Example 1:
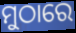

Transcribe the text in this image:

ମୁଠାରେ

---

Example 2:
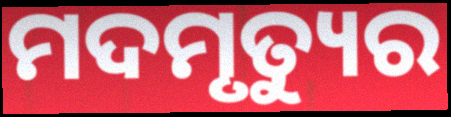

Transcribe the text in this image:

ମଦମୃତ୍ୟୁର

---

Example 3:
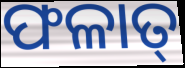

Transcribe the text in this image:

ଫଳାତ୍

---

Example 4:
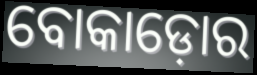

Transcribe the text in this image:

ବୋକାଡ଼ୋର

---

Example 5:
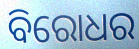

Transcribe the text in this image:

ବିରୋଧର